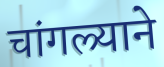
चांगल्याने